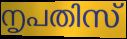
നൃപതിസ്